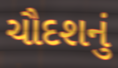
ચૌદશનું